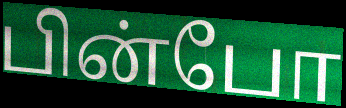
பின்போ